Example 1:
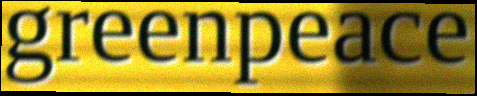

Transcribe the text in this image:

greenpeace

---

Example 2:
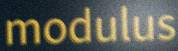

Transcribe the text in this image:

modulus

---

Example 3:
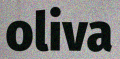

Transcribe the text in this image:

oliva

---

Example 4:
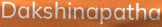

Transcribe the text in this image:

Dakshinapatha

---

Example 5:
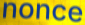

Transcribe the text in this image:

nonce